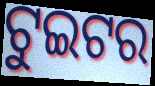
ଟୁଇଟର